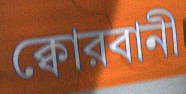
ক্বোরবানী